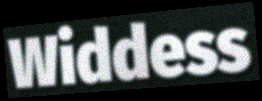
Widdess